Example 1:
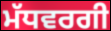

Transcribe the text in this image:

ਮੱਧਵਰਗੀ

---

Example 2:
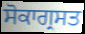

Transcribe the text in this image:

ਸੋਕਾਗ੍ਰਸਤ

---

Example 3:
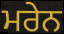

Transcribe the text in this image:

ਮਰੇਨ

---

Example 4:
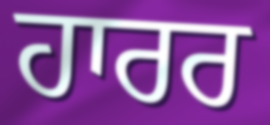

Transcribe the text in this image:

ਹਾਰਰ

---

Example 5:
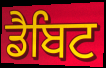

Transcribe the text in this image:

ਡੈਬਿਟ